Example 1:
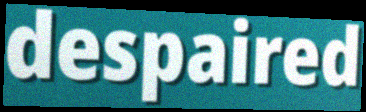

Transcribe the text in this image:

despaired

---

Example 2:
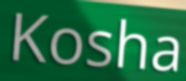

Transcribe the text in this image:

Kosha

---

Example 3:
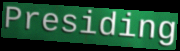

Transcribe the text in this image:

Presiding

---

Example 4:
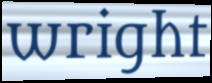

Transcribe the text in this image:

wright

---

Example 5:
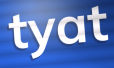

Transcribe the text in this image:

tyat